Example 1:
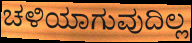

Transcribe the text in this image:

ಚಳಿಯಾಗುವುದಿಲ್ಲ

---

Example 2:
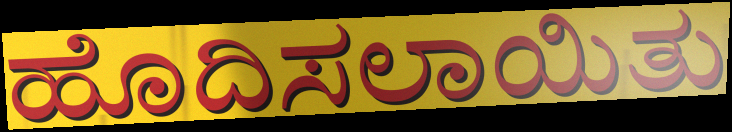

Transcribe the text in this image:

ಹೊದಿಸಲಾಯಿತು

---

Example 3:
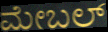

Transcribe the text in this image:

ಮೇಬಲ್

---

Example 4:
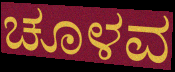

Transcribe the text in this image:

ಚೂಳವ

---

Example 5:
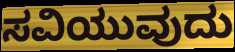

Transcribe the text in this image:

ಸವಿಯುವುದು